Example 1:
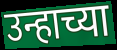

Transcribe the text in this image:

उन्हाच्या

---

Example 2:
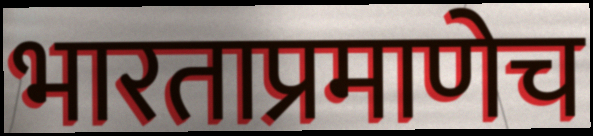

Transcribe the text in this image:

भारताप्रमाणेच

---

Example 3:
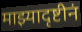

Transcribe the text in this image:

माझ्यादृष्टीनं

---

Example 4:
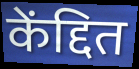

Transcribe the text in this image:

केंद्दित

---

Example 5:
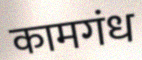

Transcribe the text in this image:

कामगंध